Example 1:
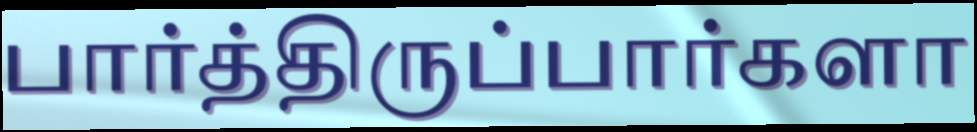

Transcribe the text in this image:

பார்த்திருப்பார்களா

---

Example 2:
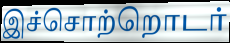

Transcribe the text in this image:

இச்சொற்றொடர்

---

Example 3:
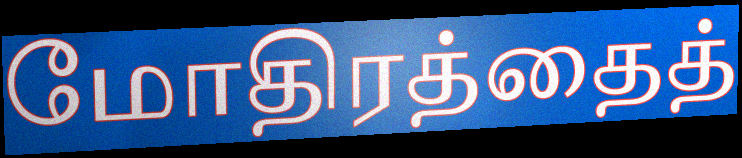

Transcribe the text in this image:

மோதிரத்தைத்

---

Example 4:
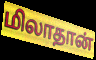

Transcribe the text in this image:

மிலாதான்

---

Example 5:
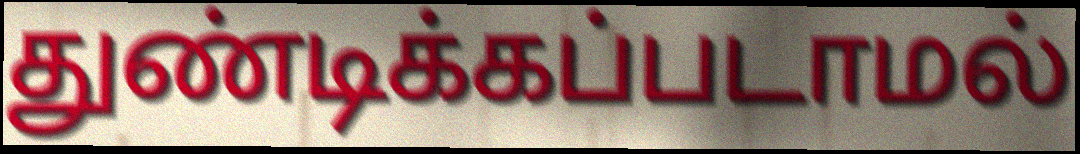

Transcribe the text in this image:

துண்டிக்கப்படாமல்